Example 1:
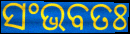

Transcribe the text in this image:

ସଂଭବତଃ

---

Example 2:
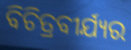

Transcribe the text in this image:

ବିଚିତ୍ରବୀର୍ଯ୍ୟର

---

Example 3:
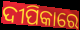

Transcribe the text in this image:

ଦୀପିକାରେ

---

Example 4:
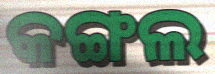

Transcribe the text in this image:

କଙ୍ଗଲ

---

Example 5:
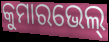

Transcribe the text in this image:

କୁମାରଭେଲ୍